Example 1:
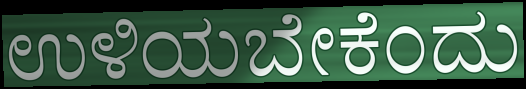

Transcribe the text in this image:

ಉಳಿಯಬೇಕೆಂದು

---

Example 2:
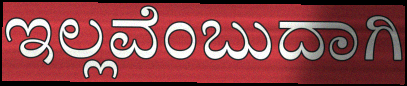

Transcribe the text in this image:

ಇಲ್ಲವೆಂಬುದಾಗಿ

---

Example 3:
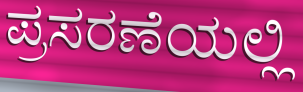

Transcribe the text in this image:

ಪ್ರಸರಣೆಯಲ್ಲಿ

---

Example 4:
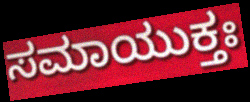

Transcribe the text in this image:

ಸಮಾಯುಕ್ತಃ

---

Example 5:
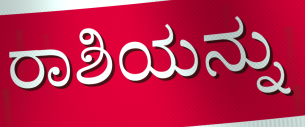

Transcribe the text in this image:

ರಾಶಿಯನ್ನು